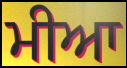
ਮੀਆ